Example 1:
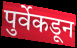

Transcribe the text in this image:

पुर्वेकडून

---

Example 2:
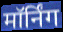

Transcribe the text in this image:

मॉर्निंग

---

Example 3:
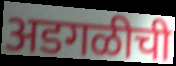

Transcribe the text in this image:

अडगळीची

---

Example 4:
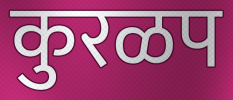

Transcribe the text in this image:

कुरळप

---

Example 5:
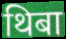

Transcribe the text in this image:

थिबा